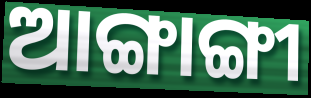
ଆଙ୍ଗାଙ୍ଗୀ